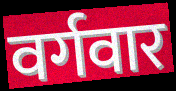
वर्गवार